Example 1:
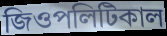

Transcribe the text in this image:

জিওপলিটিকাল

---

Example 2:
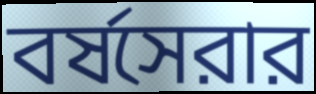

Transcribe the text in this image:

বর্ষসেরার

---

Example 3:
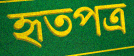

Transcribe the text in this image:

হৃতপত্র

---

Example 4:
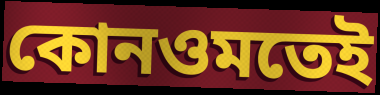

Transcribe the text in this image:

কোনওমতেই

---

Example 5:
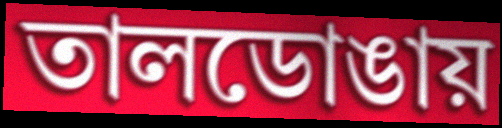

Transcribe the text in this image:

তালডোঙায়